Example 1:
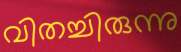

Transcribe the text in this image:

വിതച്ചിരുന്നു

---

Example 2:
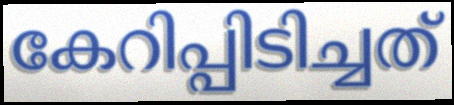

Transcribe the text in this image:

കേറിപ്പിടിച്ചത്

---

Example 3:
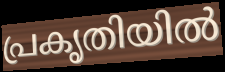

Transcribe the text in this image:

പ്രകൃതിയിൽ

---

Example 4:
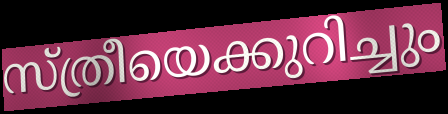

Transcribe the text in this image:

സ്ത്രീയെക്കുറിച്ചും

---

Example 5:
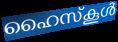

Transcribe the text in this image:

ഹൈസ്‌കൂൾ